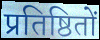
प्रतिष्ठितों